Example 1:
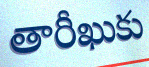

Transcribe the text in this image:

తారీఖుకు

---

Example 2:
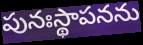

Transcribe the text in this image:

పునఃస్థాపనను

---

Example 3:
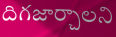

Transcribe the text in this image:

దిగజార్చాలని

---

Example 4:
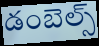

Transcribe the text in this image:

డంబెల్స్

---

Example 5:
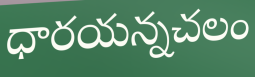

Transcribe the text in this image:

ధారయన్నచలం